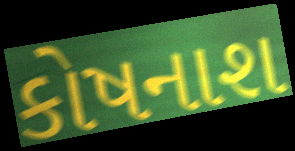
કોષનાશ